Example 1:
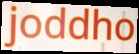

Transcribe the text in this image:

joddho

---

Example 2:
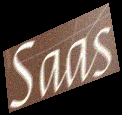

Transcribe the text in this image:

Saas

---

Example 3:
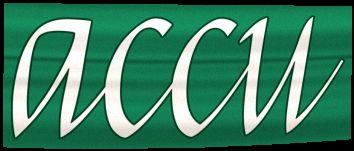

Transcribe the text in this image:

accu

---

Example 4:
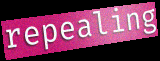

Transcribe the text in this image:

repealing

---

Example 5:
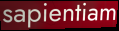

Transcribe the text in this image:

sapientiam